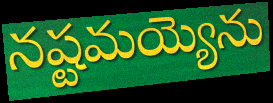
నష్టమయ్యెను